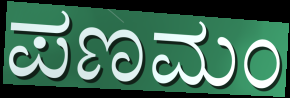
ಪಣಮಂ